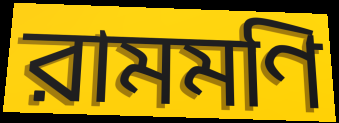
রামমণি